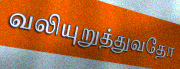
வலியுறுத்துவதோ